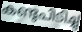
കണ്ടുപിടിച്ചു